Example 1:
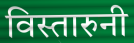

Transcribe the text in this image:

विस्तारुनी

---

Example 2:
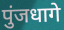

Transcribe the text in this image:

पुंजधागे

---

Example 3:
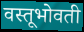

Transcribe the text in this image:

वस्तूभोवती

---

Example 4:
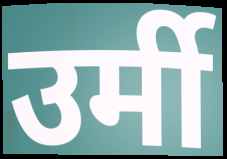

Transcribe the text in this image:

उर्मी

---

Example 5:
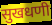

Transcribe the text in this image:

सुखधणी